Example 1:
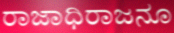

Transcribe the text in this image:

ರಾಜಾಧಿರಾಜನೂ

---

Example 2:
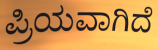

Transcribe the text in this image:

ಪ್ರಿಯವಾಗಿದೆ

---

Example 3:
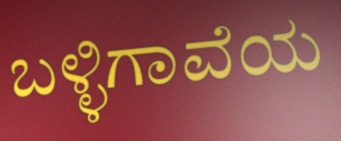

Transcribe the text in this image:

ಬಳ್ಳಿಗಾವೆಯ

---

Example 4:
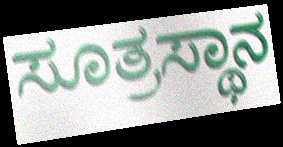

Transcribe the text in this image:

ಸೂತ್ರಸ್ಥಾನ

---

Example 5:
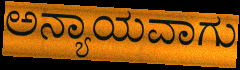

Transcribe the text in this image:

ಅನ್ಯಾಯವಾಗು